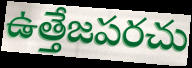
ఉత్తేజపరచు